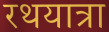
रथयात्रा